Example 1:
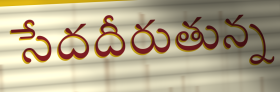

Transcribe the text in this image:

సేదదీరుతున్న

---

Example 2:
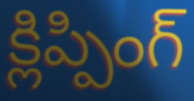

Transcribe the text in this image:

క్లిప్పింగ్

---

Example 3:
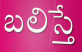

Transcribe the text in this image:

బలిస్తే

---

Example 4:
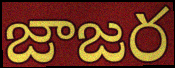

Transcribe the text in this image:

జాజర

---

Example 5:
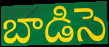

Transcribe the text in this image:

బాడిసె